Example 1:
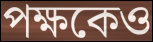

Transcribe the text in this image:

পক্ষকেও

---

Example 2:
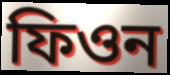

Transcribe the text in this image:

ফিওন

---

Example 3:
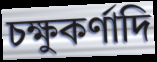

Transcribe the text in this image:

চক্ষুকর্ণাদি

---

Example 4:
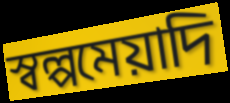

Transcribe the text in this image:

স্বল্পমেয়াদি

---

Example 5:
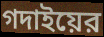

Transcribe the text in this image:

গদাইয়ের